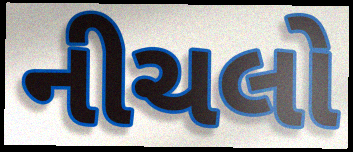
નીચલો